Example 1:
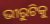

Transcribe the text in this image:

ଭୀରୁଟିକୁ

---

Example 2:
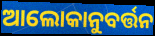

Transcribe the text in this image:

ଆଲୋକାନୁବର୍ତ୍ତନ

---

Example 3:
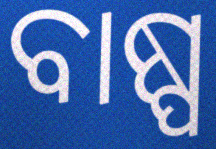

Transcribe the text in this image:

ବାଷ୍ପ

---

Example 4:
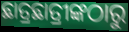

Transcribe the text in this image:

ଛାତ୍ରଛାତ୍ରୀଙ୍କଠାରୁ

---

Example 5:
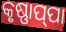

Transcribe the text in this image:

କୃଷ୍ଣାପ୍‌ପା